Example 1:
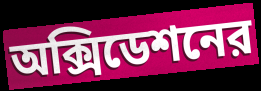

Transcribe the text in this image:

অক্সিডেশনের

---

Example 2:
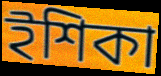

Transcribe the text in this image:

ইশিকা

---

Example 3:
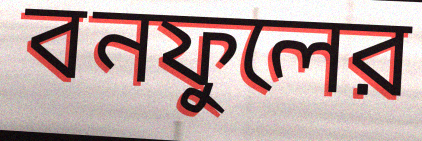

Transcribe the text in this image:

বনফুলের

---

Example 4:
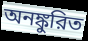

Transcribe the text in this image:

অনঙ্কুরিত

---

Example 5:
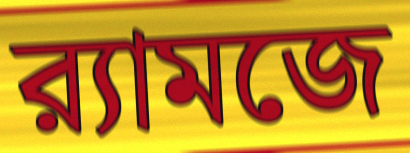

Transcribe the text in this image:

র‍্যামজে